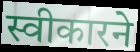
स्वीकारने